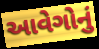
આવેગોનું